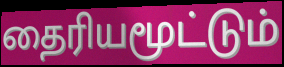
தைரியமூட்டும்